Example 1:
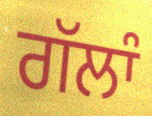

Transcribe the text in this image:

ਗੱਲਾੰ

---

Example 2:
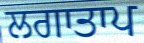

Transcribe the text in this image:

ਲਗਾਤਾਪ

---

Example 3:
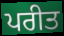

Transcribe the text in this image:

ਪਰੀਤ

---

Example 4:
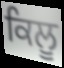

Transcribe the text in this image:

ਕਿਲੂ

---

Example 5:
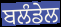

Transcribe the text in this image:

ਬਲੰਡੇਲ